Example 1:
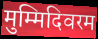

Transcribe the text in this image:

मुम्मिदिवरम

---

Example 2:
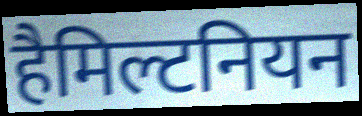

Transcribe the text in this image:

हैमिल्टनियन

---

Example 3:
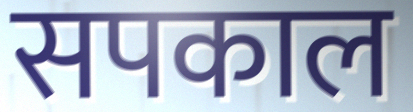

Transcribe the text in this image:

सपकाल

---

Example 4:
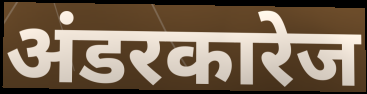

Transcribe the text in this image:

अंडरकारेज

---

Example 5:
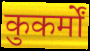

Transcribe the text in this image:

कुकर्मों